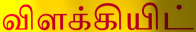
விளக்கியிட்